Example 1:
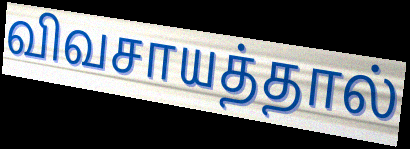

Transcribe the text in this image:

விவசாயத்தால்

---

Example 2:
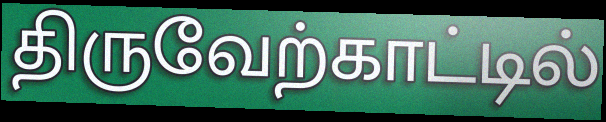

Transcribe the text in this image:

திருவேற்காட்டில்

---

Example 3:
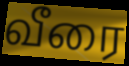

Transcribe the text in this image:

வீரை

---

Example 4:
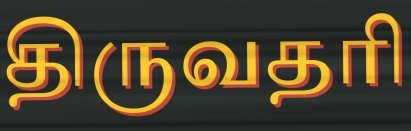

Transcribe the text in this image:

திருவதரி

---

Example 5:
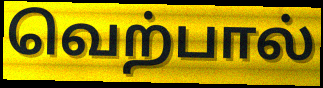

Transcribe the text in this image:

வெற்பால்